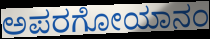
ಅಪರಗೋಯಾನಂ